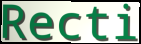
Recti